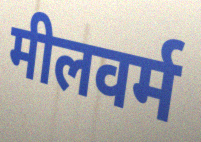
मीलवर्म